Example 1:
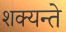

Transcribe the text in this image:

शक्यन्ते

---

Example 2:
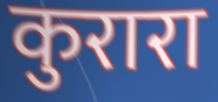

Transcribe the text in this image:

कुरारा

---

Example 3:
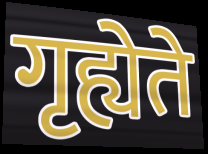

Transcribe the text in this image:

गृह्येते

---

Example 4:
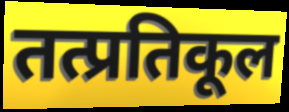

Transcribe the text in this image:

तत्प्रतिकूल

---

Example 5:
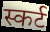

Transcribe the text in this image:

स्कर्ट